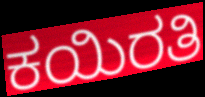
ಕಯಿರತಿ